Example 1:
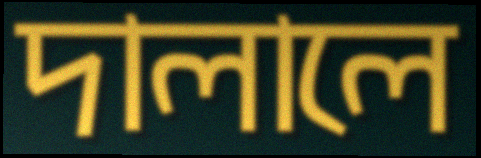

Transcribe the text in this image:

দালালে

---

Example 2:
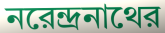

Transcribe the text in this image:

নরেন্দ্রনাথের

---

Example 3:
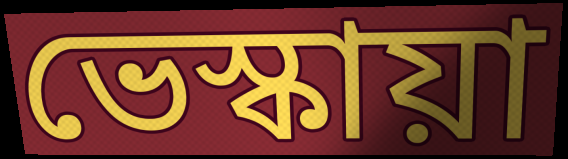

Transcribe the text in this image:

ভেস্কায়া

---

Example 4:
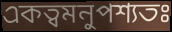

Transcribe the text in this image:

একত্বমনুপশ্যতঃ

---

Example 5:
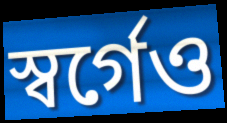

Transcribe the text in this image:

স্বর্গেও